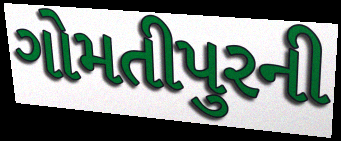
ગોમતીપુરની